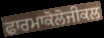
ਫਾਰਮਾਕੋਲੋਜੀਕਲ